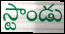
స్టాండు